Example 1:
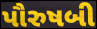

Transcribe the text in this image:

પૌરુષબી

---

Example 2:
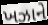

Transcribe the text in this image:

ખઝાને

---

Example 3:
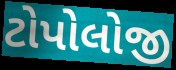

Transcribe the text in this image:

ટોપોલોજી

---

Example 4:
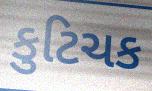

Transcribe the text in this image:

કુટિચક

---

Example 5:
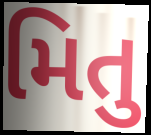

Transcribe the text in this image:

મિતુ